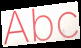
Abc